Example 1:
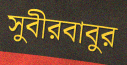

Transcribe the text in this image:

সুবীরবাবুর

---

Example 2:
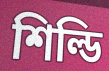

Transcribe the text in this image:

শিল্ডি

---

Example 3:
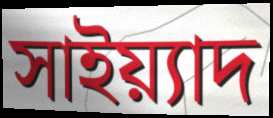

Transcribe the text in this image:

সাইয়্যাদ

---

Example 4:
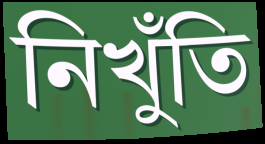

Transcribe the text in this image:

নিখুঁতি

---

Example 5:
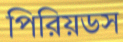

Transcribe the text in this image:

পিরিয়ডস